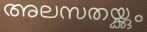
അലസതയ്ക്കും